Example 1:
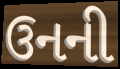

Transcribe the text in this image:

ઉનની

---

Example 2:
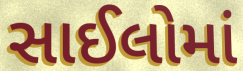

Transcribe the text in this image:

સાઈલોમાં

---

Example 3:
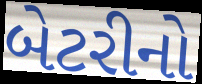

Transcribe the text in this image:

બેટરીનો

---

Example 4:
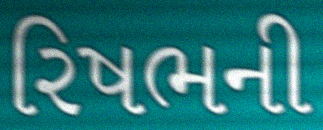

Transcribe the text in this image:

રિષભની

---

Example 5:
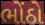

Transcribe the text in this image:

ભોંઠો